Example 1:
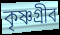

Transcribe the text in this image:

কৃষ্ণগ্রীব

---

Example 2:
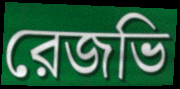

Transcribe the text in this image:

রেজভি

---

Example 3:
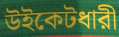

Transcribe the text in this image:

উইকেটধারী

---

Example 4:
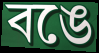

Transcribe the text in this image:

বঙে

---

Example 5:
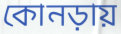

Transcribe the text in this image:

কোনড়ায়